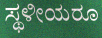
ಸ್ಥಳೀಯರೂ